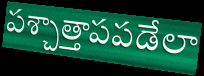
పశ్చాత్తాపపడేలా